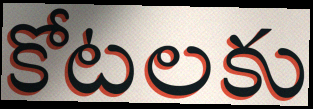
కోటలకు